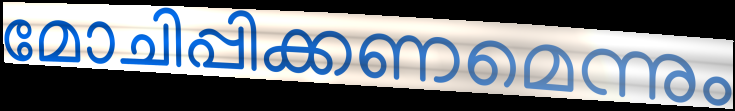
മോചിപ്പിക്കണമെന്നും